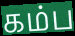
கம்ப